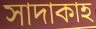
সাদাকাহ